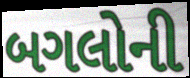
બગલોની